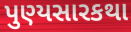
પુણ્યસારકથા